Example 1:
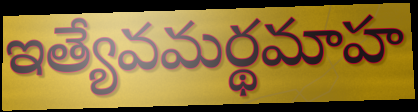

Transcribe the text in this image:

ఇత్యేవమర్థమాహ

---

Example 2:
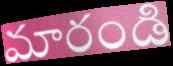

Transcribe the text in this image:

మారండి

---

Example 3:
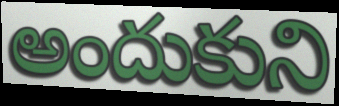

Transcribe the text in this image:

అందుకుని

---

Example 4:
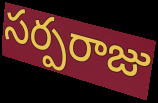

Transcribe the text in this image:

సర్పరాజు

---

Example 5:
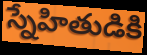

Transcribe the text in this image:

స్నేహితుడికి